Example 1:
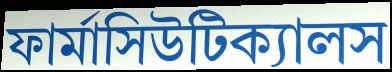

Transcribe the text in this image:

ফার্মাসিউটিক্যালস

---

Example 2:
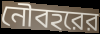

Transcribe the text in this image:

নৌবহরের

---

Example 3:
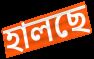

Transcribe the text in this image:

হালছে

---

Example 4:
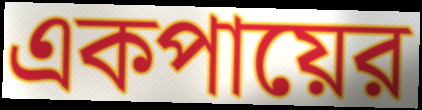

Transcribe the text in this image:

একপায়ের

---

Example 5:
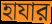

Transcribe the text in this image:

হাযার